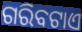
ଗରିବଟାଏ